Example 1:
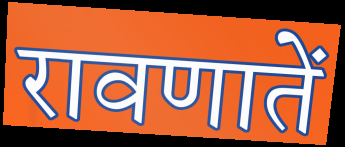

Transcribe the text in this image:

रावणातें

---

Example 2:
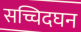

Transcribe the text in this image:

सच्चिदघन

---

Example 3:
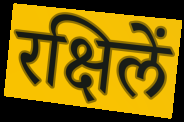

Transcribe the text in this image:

रक्षिलें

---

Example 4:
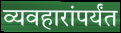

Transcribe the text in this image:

व्यवहारांपर्यंत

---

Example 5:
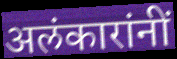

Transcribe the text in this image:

अलंकारांनीं